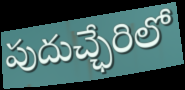
పుదుచ్ఛేరిలో